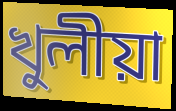
খুলীয়া